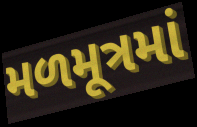
મળમૂત્રમાં